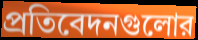
প্রতিবেদনগুলোর